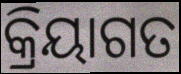
କ୍ରିୟାଗତ